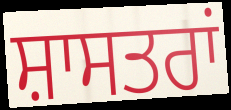
ਸ਼ਾਸਤਰਾਂ